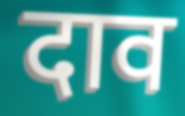
दाव